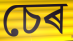
চেৰ